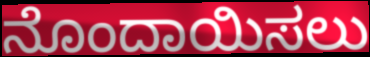
ನೊಂದಾಯಿಸಲು